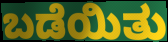
ಬಡೆಯಿತು